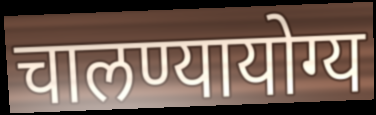
चालण्यायोग्य